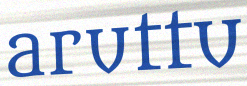
aruttu